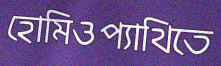
হোমিওপ্যাথিতে